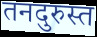
तनदुरुस्त